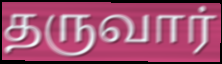
தருவார்